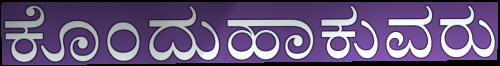
ಕೊಂದುಹಾಕುವರು